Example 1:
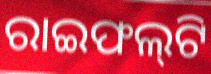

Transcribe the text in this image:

ରାଇଫଲ୍‌ଟି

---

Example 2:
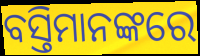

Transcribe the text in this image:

ବସ୍ତିମାନଙ୍କରେ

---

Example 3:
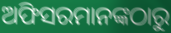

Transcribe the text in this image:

ଅଫିସରମାନଙ୍କଠାରୁ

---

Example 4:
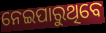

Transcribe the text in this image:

ନେଇପାରୁଥିବେ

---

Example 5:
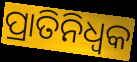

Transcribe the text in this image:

ପ୍ରାତିନିଧ୍ଵକ